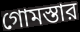
গোমস্তার